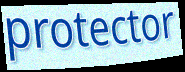
protector